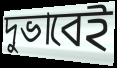
দুভাবেই